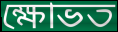
ক্ষোভত